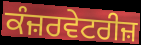
ਕੰਜ਼ਰਵੇਟਰੀਜ਼